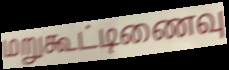
மறுகூட்டிணைவு